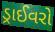
ડ્રાઈવરો